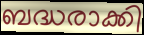
ബദ്ധരാക്കി